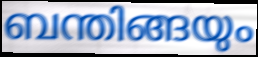
ബന്തിങ്ങയും